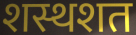
शस्थशत